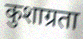
कुशाग्रता